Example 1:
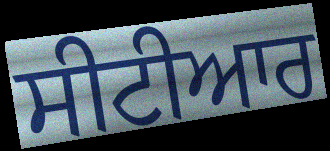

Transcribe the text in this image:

ਸੀਟੀਆਰ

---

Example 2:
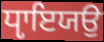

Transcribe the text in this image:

ਧੵਾਇਯਉ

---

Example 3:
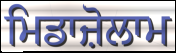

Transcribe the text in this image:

ਮਿਡਾਜ਼ੋਲਾਮ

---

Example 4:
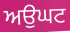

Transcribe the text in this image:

ਅਉਘਟ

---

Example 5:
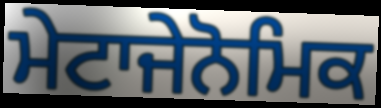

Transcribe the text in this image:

ਮੇਟਾਜੇਨੋਮਿਕ